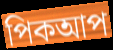
পিকআপ